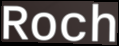
Roch